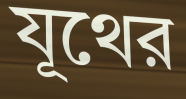
যূথের